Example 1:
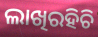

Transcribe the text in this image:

ଲାଖିରହିଚି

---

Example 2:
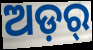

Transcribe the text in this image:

ଅଡ଼ର୍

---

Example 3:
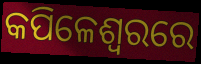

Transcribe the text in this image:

କପିଳେଶ୍ୱରରେ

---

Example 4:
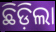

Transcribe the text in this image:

ଛିଡ଼ିଲା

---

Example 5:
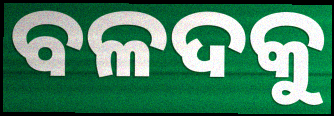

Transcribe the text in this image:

ବଳଦକୁ